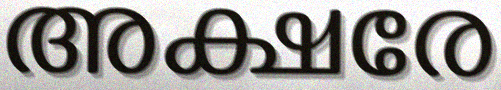
അക്ഷരേ